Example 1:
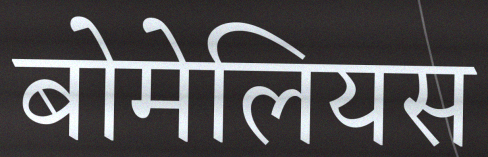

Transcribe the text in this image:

बोमेलियस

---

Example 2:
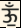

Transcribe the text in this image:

ऊँ॒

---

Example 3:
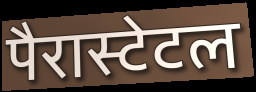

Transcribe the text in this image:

पैरास्टेटल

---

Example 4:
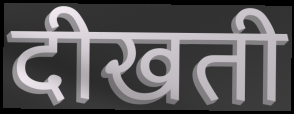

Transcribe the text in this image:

दीखती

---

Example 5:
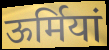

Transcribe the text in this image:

ऊर्मियां